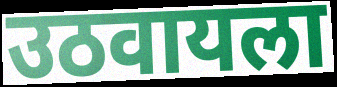
उठवायला